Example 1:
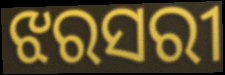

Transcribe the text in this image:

ଝରସରୀ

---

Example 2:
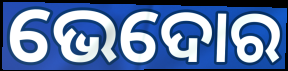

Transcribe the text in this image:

ଭେଦୋର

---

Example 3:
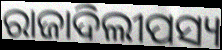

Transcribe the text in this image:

ରାଜାଦିଲୀପସ୍ୟ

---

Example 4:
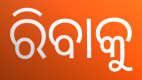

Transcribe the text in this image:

ରିବାକୁ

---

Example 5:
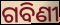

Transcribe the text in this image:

ଗବିଣୀ